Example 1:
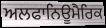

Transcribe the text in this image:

ਅਲਫਾਨਿਊਮੈਰਿਕ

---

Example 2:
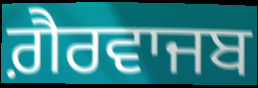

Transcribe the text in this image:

ਗ਼ੈਰਵਾਜਬ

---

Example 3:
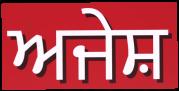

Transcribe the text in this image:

ਅਜੇਸ਼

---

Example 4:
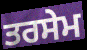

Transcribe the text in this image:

ਤਰਸੇਮ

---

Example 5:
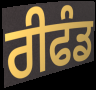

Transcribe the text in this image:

ਰੀਫੰਡ